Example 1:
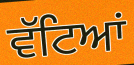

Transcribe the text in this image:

ਵੱਟਿਆਂ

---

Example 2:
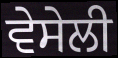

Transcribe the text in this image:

ਵੇਸੇਲੀ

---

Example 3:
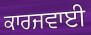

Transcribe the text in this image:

ਕਾਰਜਵਾਈ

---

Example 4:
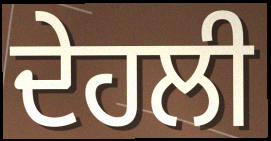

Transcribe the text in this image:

ਦੇਹਲੀ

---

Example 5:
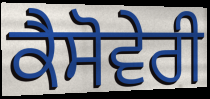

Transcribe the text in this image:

ਕੈਸੋਵੇਰੀ